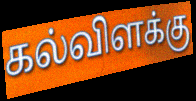
கல்விளக்கு